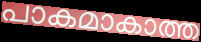
പാകമാകാത്ത